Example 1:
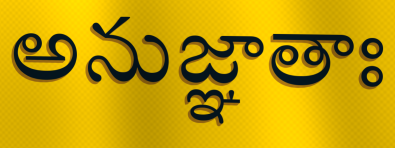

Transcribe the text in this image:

అనుజ్ఞాతాః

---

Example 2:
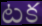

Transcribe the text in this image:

టక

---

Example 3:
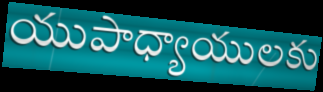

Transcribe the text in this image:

యుపాధ్యాయులకు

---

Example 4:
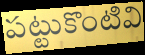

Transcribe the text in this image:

పట్టుకొంటివి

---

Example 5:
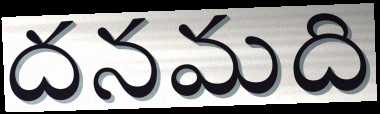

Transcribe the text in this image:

దనమది